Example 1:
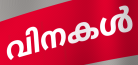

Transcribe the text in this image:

വിനകൾ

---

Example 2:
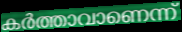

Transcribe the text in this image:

കർത്താവാണെന്ന്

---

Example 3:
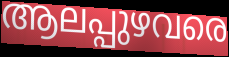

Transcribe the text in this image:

ആലപ്പുഴവരെ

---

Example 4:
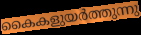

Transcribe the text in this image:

കൈകളുയർത്തുന്നു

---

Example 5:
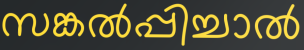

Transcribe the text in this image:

സങ്കൽപ്പിച്ചാൽ